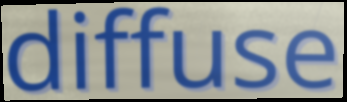
diffuse